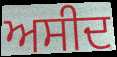
ਅਸੀਦ